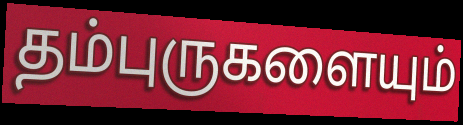
தம்புருகளையும்